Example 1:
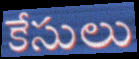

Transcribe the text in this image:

కేసులు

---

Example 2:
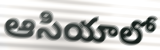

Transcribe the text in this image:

ఆసియాలో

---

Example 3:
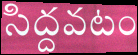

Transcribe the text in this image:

సిద్దవటం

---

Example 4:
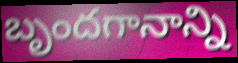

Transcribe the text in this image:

బృందగానాన్ని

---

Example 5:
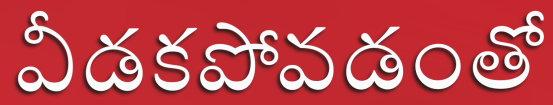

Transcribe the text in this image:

వీడకపోవడంతో